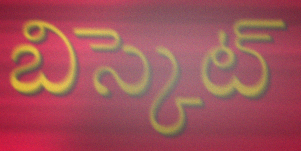
బిస్కెట్